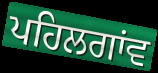
ਪਹਿਲਗਾਂਵ